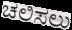
ಚಲಿಸಲು